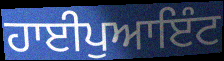
ਹਾਈਪੁਆਇੰਟ